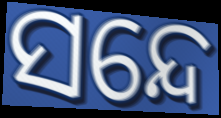
ସନ୍ଦେ